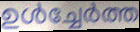
ഉൾച്ചേർത്ത